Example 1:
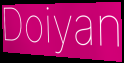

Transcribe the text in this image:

Doiyan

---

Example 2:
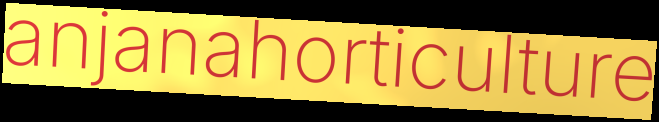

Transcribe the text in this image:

anjanahorticulture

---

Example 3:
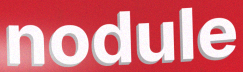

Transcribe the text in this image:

nodule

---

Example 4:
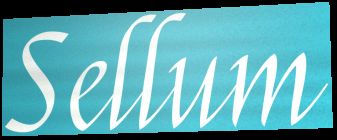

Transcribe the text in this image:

Sellum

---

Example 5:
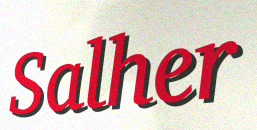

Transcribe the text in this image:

Salher